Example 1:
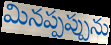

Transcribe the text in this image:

మినప్పప్పును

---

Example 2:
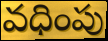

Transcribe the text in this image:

వధింపు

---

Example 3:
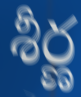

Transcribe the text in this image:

శీర్ణ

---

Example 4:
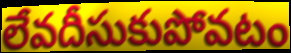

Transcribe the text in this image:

లేవదీసుకుపోవటం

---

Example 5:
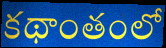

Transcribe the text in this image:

కథాంతంలో